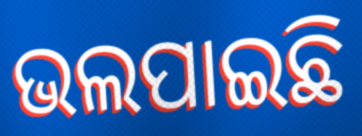
ଭଲପାଇଛି